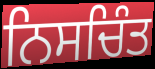
ਨਿਸਚਿੰਤ